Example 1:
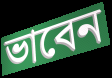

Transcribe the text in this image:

ভাবেন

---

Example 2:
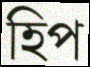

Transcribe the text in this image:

হিপ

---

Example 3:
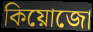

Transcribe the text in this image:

কিয়োজো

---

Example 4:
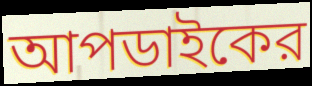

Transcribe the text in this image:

আপডাইকের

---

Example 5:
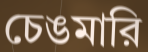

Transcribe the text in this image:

চেঙমারি